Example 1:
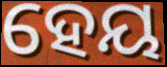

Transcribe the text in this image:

ହେୟ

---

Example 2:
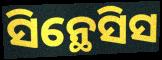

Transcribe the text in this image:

ସିନ୍ଥେସିସ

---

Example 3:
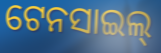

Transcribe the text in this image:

ଟେନସାଇଲ୍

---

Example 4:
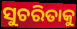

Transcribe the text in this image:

ସୁଚରିତାକୁ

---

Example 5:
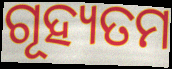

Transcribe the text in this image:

ଗୂହ୍ୟତମ